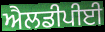
ਐਲਡੀਪੀਈ